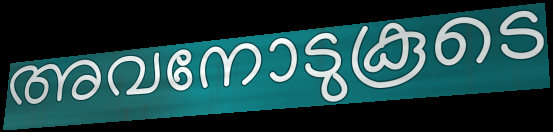
അവനോടുകൂടെ